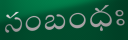
సంబంధః